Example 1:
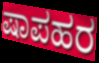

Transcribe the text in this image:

ಷಾಪಹರ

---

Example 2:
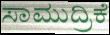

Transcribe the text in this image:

ಸಾಮುದ್ರಿಕೆ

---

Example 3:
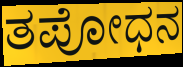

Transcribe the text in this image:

ತಪೋಧನ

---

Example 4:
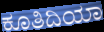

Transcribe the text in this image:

ಕೂತಿದಿಯಾ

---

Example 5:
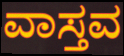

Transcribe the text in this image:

ವಾಸ್ತವ